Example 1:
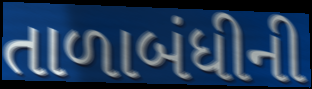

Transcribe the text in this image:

તાળાબંધીની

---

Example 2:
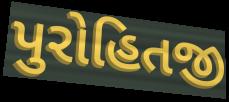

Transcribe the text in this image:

પુરોહિતજી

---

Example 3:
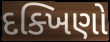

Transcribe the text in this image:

દક્ખિણો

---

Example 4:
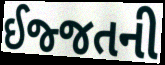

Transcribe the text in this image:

ઈજ્જતની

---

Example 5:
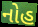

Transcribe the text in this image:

નોહ